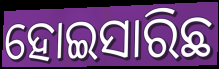
ହୋଇସାରିଛ